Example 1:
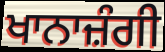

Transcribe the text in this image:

ਖਾਨਾਜ਼ੰਗੀ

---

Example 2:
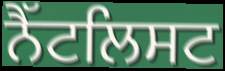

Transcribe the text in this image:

ਨੈੱਟਲਿਸਟ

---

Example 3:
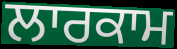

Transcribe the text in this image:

ਲਾਰਕਾਮ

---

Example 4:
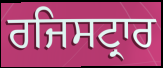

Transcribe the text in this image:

ਰਜਿਸਟ੍ਰਾਰ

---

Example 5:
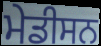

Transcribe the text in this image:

ਮੇਡੀਸਨ